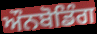
ਔਨਬੋਡਿੰਗ